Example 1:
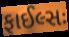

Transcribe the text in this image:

ફાઈલ્સઃ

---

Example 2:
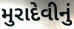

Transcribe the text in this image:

મુરાદેવીનું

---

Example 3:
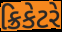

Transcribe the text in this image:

ક્રિકેટરે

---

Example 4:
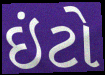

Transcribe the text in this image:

ઇંટો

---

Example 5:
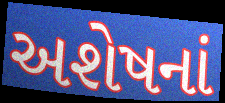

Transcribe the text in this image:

અશેષનાં